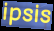
ipsis